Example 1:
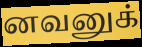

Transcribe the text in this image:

னவனுக்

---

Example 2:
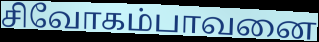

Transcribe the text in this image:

சிவோகம்பாவனை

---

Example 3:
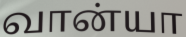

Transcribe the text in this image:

வான்யா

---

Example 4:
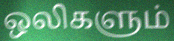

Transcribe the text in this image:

ஒலிகளும்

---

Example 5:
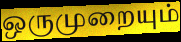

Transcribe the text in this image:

ஒருமுறையும்